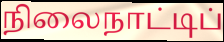
நிலைநாட்டிப்